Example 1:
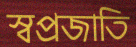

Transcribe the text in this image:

স্বপ্রজাতি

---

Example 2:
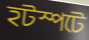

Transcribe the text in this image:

হটস্পটে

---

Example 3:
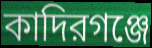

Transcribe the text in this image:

কাদিরগঞ্জে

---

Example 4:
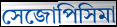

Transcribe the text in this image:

সেজোপিসিমা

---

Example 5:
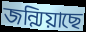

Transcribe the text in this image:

জন্মিয়াছে